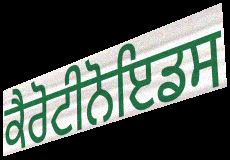
ਕੈਰੋਟੀਨੋਇਡਸ